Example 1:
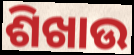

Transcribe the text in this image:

ଶିଖାଉ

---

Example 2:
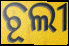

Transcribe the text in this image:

ଚୂଲୀ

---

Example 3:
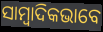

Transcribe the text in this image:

ସାମ୍ୱାଦିକଭାବେ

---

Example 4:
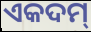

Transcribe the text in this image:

ଏକଦମ୍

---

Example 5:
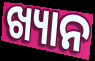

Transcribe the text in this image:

ଖ୍ୟାନ